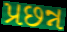
પ્રછન્ન